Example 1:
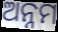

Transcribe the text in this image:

ଅନ୍ନମ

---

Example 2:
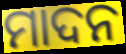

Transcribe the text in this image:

ମାଦନ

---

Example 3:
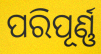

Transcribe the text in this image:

ପରିପୂର୍ଣ୍ଣ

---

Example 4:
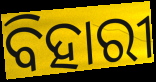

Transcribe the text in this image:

ବିହାରୀ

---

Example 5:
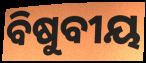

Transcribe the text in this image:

ବିଷୁବୀୟ